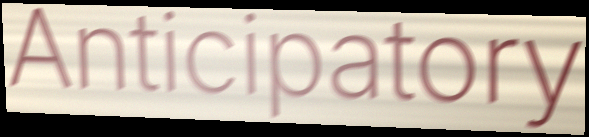
Anticipatory